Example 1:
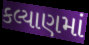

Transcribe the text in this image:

કલ્યાણમાં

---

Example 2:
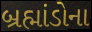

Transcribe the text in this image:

બ્રહ્માંડોના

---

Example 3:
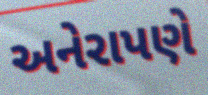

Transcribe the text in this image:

અનેરાપણે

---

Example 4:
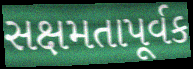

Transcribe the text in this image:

સક્ષમતાપૂર્વક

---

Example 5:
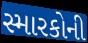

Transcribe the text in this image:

સ્મારકોની